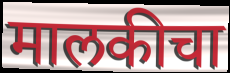
मालकीचा